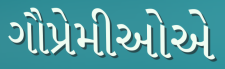
ગૌપ્રેમીઓએ